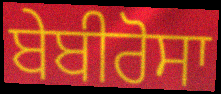
ਬੇਬੀਰੋਸਾ